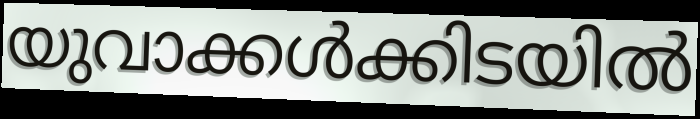
യുവാക്കൾക്കിടയിൽ